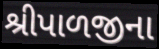
શ્રીપાળજીના